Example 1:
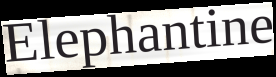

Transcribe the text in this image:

Elephantine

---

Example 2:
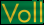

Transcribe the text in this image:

Voll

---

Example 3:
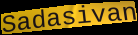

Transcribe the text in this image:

Sadasivan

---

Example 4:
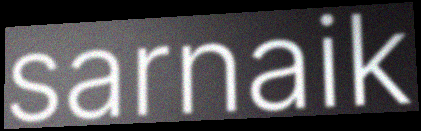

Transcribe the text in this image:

sarnaik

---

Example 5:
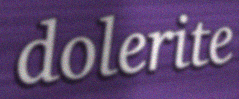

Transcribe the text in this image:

dolerite